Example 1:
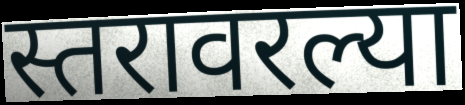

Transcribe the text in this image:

स्तरावरल्या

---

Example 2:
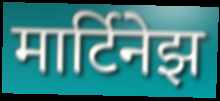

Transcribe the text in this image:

मार्टिनेझ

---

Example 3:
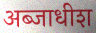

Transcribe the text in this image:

अब्जाधीश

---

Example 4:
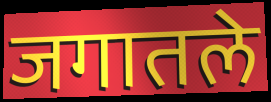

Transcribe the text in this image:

जगातले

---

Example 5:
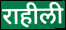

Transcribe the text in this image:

राहीली